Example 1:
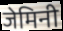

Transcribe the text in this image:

जेमिनी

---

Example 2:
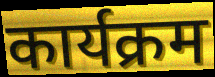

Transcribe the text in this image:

कार्यक्रम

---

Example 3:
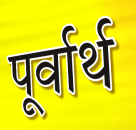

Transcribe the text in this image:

पूर्वार्थ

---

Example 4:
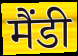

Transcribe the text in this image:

मैंडी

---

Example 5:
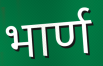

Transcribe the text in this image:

भार्ण